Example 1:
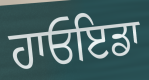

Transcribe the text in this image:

ਹਾਓਇਡਾ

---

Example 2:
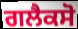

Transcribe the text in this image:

ਗਲੈਕਸੋ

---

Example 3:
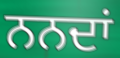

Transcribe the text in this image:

ਨਨਦਾਂ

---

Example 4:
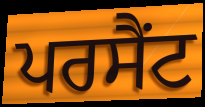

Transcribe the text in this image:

ਪਰਸੈਂਟ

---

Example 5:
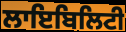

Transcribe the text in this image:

ਲਾਇਬਿਲਿਟੀ